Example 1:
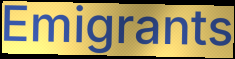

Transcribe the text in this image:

Emigrants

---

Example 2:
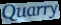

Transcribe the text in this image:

Quarry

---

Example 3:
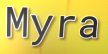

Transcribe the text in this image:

Myra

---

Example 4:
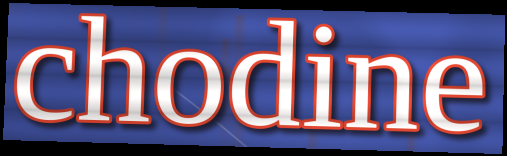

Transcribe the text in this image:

chodine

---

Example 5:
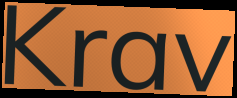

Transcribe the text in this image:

Krav